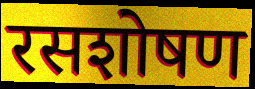
रसशोषण